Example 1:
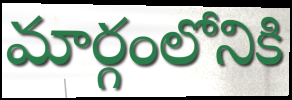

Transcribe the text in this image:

మార్గంలోనికి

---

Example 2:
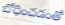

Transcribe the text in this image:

బోధించడంతో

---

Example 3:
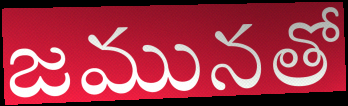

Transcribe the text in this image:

జమునతో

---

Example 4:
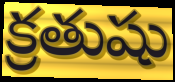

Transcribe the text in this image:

క్రతుషు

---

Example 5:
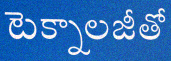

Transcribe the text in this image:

టెక్నాలజీతో